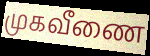
முகவீணை